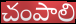
చంపాలి